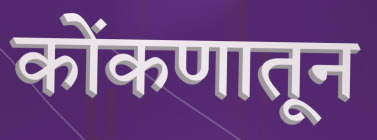
कोंकणातून